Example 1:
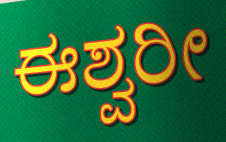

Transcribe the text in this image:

ಈಶ್ವರೀ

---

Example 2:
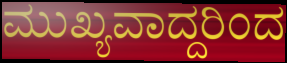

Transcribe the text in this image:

ಮುಖ್ಯವಾದ್ದರಿಂದ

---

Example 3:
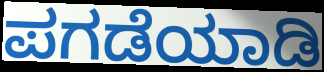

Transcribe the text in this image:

ಪಗಡೆಯಾಡಿ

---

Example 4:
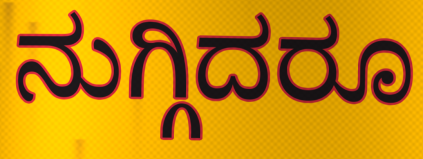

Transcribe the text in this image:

ನುಗ್ಗಿದರೂ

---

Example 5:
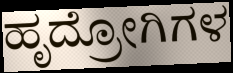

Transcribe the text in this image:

ಹೃದ್ರೋಗಿಗಳ